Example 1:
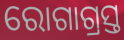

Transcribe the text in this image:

ରୋଗାଗ୍ରସ୍ତ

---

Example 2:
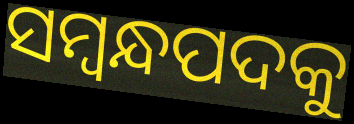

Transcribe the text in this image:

ସମ୍ବନ୍ଧପଦକୁ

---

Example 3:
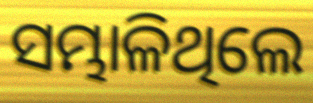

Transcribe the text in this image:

ସମ୍ଭାଳିଥିଲେ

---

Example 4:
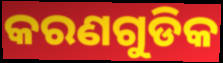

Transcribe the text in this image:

କରଣଗୁଡିକ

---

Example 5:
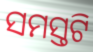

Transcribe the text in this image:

ସମସ୍ତଟି